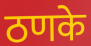
ठणके